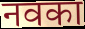
नवका